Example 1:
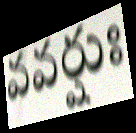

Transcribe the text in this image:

వవర్షుః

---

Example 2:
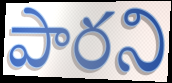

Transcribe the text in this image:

పారని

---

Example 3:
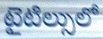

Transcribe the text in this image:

టైటిల్సులో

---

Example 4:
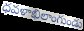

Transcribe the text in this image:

ధవళాఖిలాంగుండు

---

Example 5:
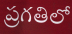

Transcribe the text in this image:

ప్రగతిలో